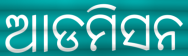
ଆଡମିସନ